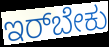
ಇರ್‌ಬೇಕು